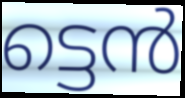
ട്ടെൻ